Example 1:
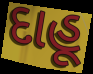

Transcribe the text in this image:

દાહૂ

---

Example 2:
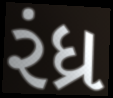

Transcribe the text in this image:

રંધ્ર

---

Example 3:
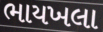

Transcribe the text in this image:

ભાયખલા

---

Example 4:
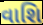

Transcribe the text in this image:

વાશિ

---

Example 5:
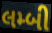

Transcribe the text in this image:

લમ્બી